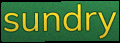
sundry